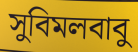
সুবিমলবাবু